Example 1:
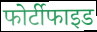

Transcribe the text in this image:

फोर्टीफाइड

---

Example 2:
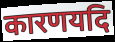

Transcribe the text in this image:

कारणयदि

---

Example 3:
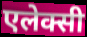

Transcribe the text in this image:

एलेक्सी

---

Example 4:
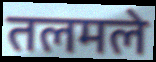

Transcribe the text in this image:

तलमले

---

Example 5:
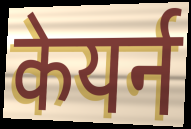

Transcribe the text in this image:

केयर्न